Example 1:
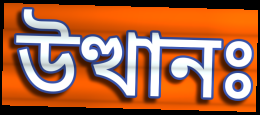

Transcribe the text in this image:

উত্থানঃ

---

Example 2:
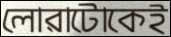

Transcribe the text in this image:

লোৱাটোকেই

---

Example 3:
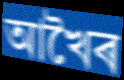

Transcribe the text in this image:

আখৈৰ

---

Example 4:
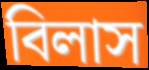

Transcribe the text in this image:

বিলাস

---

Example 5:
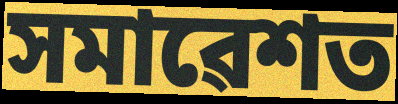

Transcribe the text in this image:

সমাৱেশত